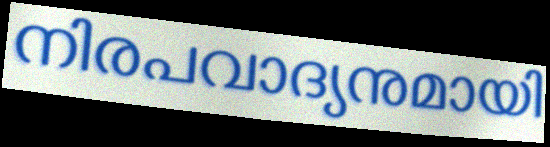
നിരപവാദ്യനുമായി